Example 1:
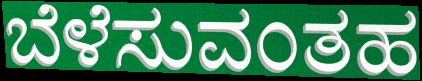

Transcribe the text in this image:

ಬೆಳೆಸುವಂತಹ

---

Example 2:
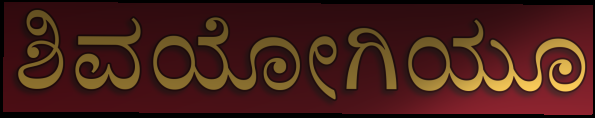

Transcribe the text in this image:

ಶಿವಯೋಗಿಯೂ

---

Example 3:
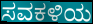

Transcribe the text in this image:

ಸವಕಳಿಯ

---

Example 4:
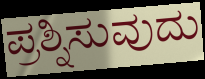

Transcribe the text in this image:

ಪ್ರಶ್ನಿಸುವುದು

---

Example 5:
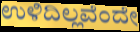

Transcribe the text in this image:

ಉಳಿದಿಲ್ಲವೆಂದೇ